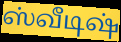
ஸ்வீடிஷ்